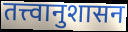
तत्त्वानुशासन